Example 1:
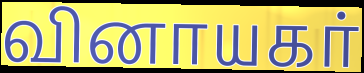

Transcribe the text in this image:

வினாயகர்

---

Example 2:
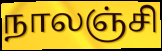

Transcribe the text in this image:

நாலஞ்சி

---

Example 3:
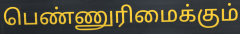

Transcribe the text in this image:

பெண்ணுரிமைக்கும்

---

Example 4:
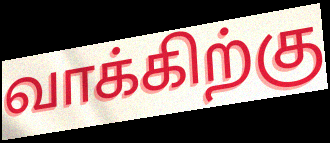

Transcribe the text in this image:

வாக்கிற்கு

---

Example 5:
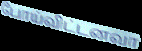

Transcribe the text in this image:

போய்விட்டனவா